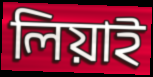
লিয়াই